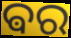
ଵର